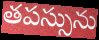
తపస్సును